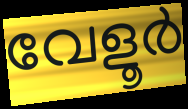
വേളൂർ